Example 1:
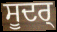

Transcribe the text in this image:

ਸੂਦਰ੍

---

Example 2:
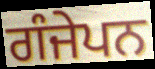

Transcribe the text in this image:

ਗੰਜੇਪਨ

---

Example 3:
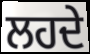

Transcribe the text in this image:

ਲਹਦੇ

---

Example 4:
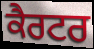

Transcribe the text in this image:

ਕੈਰਟਰ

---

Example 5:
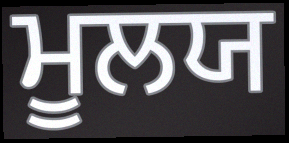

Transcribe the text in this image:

ਮੂਲਯ